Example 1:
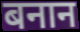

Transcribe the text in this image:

बनान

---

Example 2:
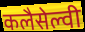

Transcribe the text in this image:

कलैसेल्वी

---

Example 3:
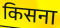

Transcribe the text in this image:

किसना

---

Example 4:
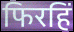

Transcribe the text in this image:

फिरहिं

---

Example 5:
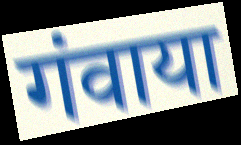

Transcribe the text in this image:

गंवाया